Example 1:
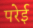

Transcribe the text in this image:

परेई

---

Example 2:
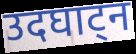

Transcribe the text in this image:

उदघाट्न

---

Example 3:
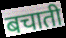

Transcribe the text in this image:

बचाती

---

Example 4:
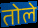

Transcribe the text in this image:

तोले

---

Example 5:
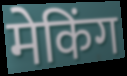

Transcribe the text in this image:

मेकिंग